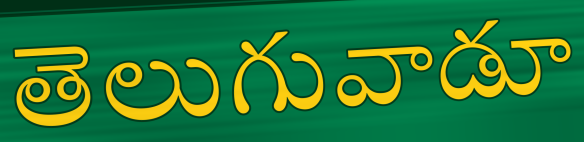
తెలుగువాడూ